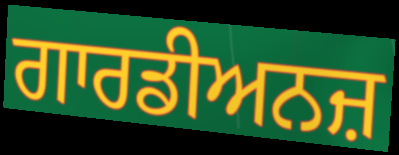
ਗਾਰਡੀਅਨਜ਼